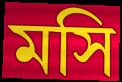
মসি